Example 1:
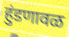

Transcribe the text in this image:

हुंडणावळ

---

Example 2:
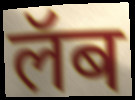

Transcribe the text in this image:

लॅब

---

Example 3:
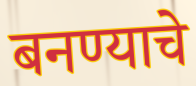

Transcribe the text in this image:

बनण्याचे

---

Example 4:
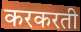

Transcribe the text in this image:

करकरती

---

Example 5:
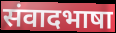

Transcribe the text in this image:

संवादभाषा